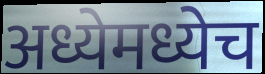
अध्येमध्येच